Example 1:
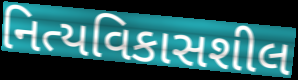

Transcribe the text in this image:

નિત્યવિકાસશીલ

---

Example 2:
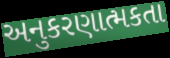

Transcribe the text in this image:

અનુકરણાત્મકતા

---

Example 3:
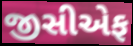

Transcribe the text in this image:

જીસીએફ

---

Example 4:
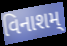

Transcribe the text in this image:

વિનાશમ્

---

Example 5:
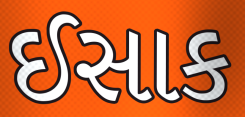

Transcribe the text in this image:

ઈસાક